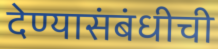
देण्यासंबंधीची